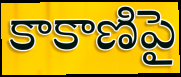
కాకాణిపై